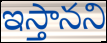
ఇస్తానని